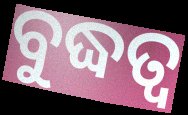
ବୁଦ୍ଧତ୍ଵ